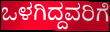
ಒಳಗಿದ್ದವರಿಗೆ